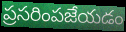
ప్రసరింపజేయడం